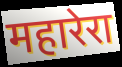
महारेरा